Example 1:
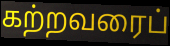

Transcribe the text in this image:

கற்றவரைப்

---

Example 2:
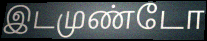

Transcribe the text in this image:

இடமுண்டோ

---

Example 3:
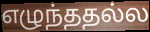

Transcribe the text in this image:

எழுந்ததல்ல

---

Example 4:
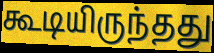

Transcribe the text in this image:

கூடியிருந்தது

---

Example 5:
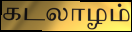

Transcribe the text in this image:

கடலாழம்